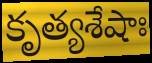
కృత్యశేషాః